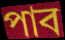
পাব